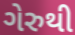
ગેરુથી